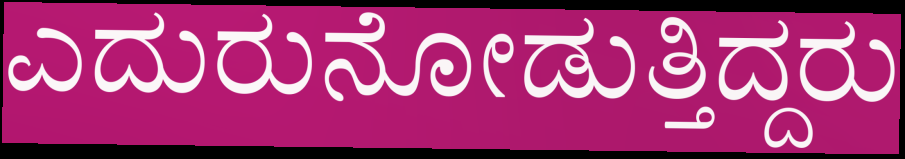
ಎದುರುನೋಡುತ್ತಿದ್ದರು